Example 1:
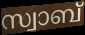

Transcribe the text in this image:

സ്വാബ്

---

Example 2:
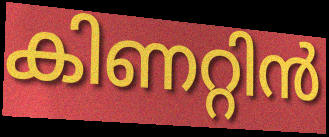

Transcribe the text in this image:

കിണറ്റിൻ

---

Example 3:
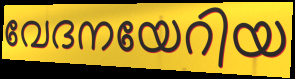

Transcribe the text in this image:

വേദനയേറിയ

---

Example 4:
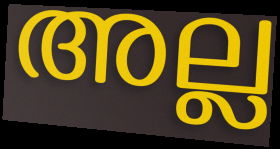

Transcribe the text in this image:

അല്ല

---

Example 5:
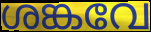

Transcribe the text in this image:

ശങ്കവേ